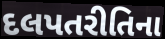
દલપતરીતિના